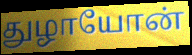
துழாயோன்